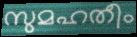
സുമഹതീം